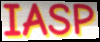
IASP